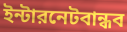
ইন্টারনেটবান্ধব